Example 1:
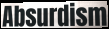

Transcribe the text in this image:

Absurdism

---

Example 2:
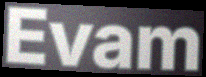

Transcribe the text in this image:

Evam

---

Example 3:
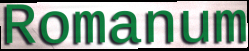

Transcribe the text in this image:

Romanum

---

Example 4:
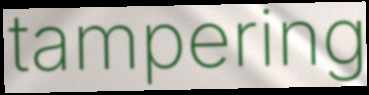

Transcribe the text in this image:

tampering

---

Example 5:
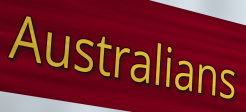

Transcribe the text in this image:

Australians